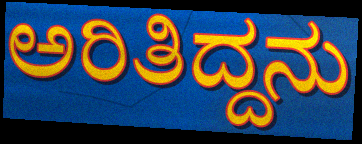
ಅರಿತಿದ್ದನು